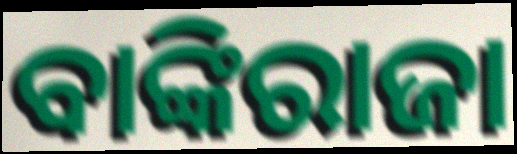
ବାଙ୍କିରାଜା